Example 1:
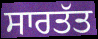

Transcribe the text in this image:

ਸਾਰਤੱਤ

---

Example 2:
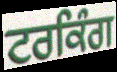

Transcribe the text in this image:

ਟਰਕਿੰਗ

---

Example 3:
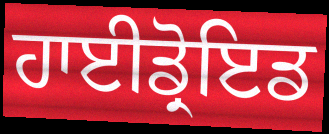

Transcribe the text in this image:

ਹਾਈਡ੍ਰੋਇਡ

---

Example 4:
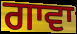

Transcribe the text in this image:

ਗਾਵਾ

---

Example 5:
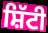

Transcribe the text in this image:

ਸ਼ਿੱਟੀ